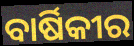
ବାର୍ଷିକୀର